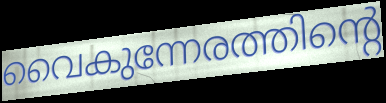
വൈകുന്നേരത്തിന്റെ